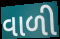
વાળી